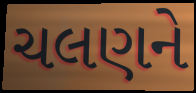
ચલણને